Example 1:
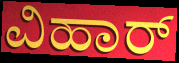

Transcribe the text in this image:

ವಿಹಾರ್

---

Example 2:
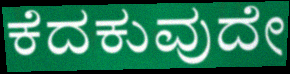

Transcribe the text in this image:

ಕೆದಕುವುದೇ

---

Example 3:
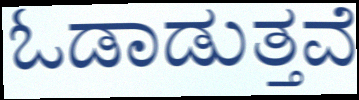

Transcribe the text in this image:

ಓಡಾಡುತ್ತವೆ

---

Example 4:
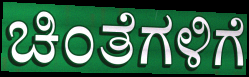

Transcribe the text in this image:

ಚಿಂತೆಗಳಿಗೆ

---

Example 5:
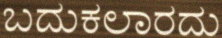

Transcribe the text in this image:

ಬದುಕಲಾರದು